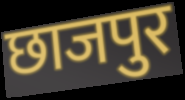
छाजपुर